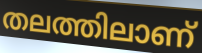
തലത്തിലാണ്